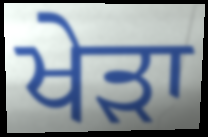
ਖੇੜਾ